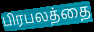
பிரபலத்தை